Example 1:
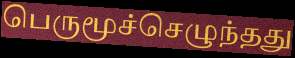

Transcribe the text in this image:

பெருமூச்செழுந்தது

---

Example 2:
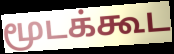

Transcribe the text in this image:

மூடக்கூட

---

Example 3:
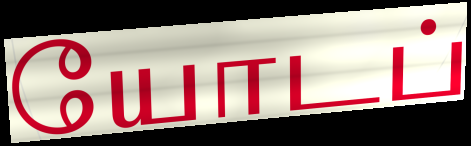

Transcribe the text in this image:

யோடப்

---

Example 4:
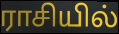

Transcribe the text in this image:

ராசியில்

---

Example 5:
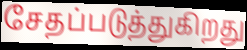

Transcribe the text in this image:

சேதப்படுத்துகிறது